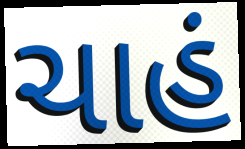
ચાહં